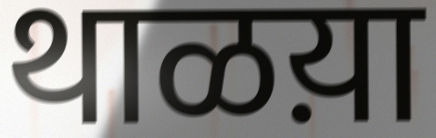
थाळय़ा